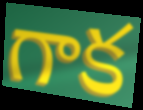
గాక